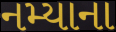
નમ્યાના